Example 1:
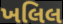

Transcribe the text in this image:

ખલિલ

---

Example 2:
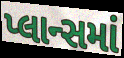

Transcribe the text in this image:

પ્લાન્સમાં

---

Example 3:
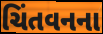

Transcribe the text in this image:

ચિંતવનના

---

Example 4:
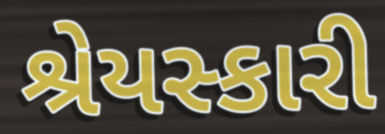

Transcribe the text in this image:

શ્રેયસ્કારી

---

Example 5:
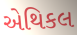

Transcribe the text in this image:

એથિકલ